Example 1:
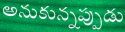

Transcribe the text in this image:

అనుకున్నప్పుడు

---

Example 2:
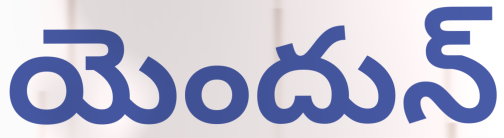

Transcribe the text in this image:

యెందున్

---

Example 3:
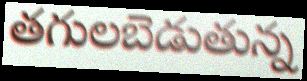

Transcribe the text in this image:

తగులబెడుతున్న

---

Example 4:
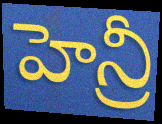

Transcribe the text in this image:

హెన్రీ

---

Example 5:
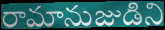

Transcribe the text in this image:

రామానుజుడిని